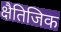
क्षैतिजिक